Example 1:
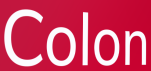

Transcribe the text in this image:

Colon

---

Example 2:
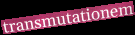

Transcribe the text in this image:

transmutationem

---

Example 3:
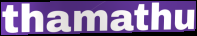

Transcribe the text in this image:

thamathu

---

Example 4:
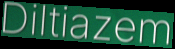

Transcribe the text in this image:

Diltiazem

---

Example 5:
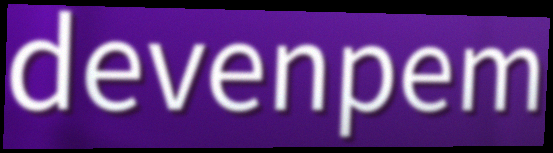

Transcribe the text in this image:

devenpem